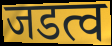
जडत्व